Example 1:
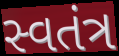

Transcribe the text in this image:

સ્વતંત્ર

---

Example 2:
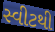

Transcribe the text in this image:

સ્વીટથી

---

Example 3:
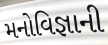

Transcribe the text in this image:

મનોવિજ્ઞાની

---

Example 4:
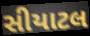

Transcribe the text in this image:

સીયાટલ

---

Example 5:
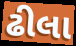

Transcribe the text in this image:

ઢીલા